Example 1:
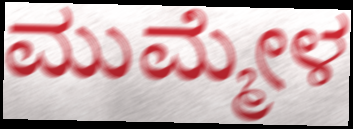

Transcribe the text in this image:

ಮುಮ್ಮೇಳ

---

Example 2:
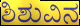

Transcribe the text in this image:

ಶಿಶುವಿನ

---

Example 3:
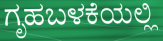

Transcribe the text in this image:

ಗೃಹಬಳಕೆಯಲ್ಲಿ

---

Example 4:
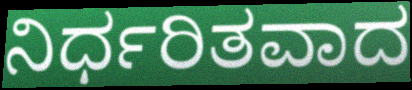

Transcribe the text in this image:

ನಿರ್ಧರಿತವಾದ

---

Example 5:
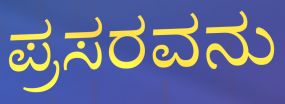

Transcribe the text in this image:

ಪ್ರಸರವನು